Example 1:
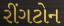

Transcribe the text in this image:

રીંગટોન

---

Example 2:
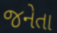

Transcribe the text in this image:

જનેતા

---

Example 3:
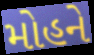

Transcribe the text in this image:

મોહને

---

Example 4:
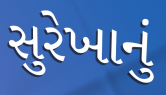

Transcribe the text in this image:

સુરેખાનું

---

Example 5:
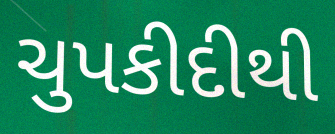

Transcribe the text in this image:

ચુપકીદીથી